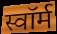
स्वॉर्म